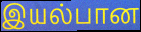
இயல்பான